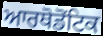
ਆਰਥੋਡੋਂਟਿਕ